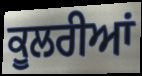
ਕੂਲਰੀਆਂ